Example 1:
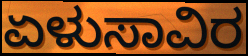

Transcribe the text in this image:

ಏಳುಸಾವಿರ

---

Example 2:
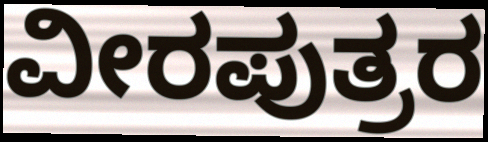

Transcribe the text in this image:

ವೀರಪುತ್ರರ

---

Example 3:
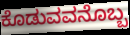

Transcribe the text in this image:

ಕೊಡುವವನೊಬ್ಬ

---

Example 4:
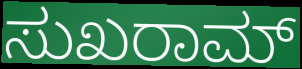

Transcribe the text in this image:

ಸುಖರಾಮ್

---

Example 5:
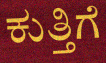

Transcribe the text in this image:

ಕುತ್ತಿಗೆ